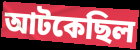
আটকেছিল